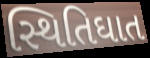
સ્થિતિઘાત